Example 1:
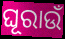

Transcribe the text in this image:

ଘୂରାଉଁ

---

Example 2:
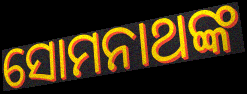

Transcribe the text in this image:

ସୋମନାଥଙ୍କ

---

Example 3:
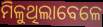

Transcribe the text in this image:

ମିଳୁଥିଲାବେଳେ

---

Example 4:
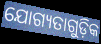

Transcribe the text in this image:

ଯୋଗ୍ୟତାଗୁଡ଼ିକ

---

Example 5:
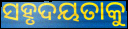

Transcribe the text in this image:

ସହୃଦୟତାକୁ